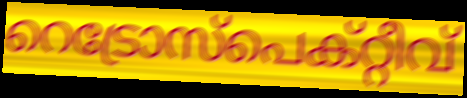
റെട്രോസ്പെക്റ്റീവ്